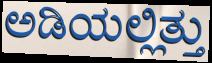
ಅಡಿಯಲ್ಲಿತ್ತು